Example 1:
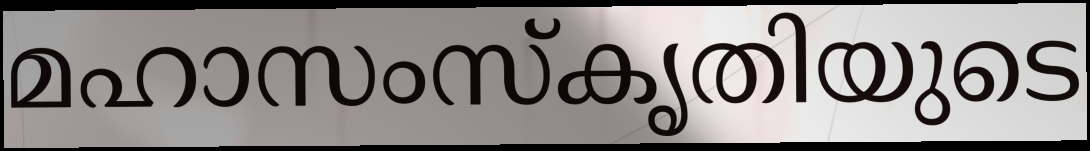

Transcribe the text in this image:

മഹാസംസ്കൃതിയുടെ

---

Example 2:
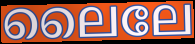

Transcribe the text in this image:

ലൈലേ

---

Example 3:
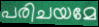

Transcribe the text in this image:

പരിചയമേ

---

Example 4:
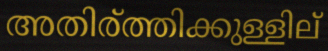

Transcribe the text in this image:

അതിര്ത്തിക്കുള്ളില്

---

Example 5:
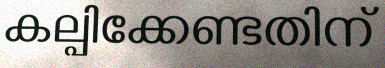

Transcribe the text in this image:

കല്പിക്കേണ്ടതിന്